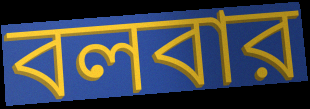
বলবার